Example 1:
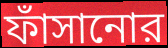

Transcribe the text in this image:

ফাঁসানোর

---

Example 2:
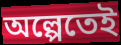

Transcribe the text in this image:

অল্পেতেই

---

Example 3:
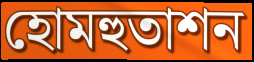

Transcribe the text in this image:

হোমহুতাশন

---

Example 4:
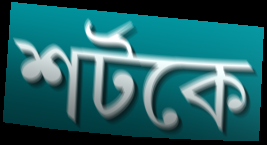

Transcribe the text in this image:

শর্টকে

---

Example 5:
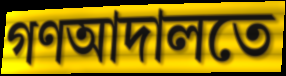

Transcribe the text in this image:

গণআদালতে